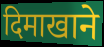
दिमाखाने